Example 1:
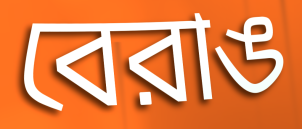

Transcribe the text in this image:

বেরাঙ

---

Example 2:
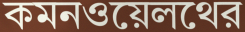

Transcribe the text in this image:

কমনওয়েলথের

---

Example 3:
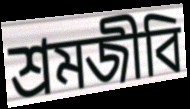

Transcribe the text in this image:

শ্রমজীবি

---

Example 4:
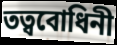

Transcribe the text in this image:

তত্ববোধিনী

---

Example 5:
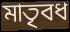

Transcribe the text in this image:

মাতৃবধ